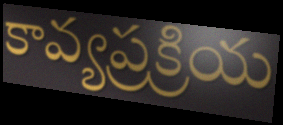
కావ్యప్రక్రియ